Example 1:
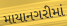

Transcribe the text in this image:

માયાનગરીમાં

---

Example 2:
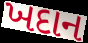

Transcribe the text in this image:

ખદાન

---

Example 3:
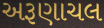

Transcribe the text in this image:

અરૂણાચલ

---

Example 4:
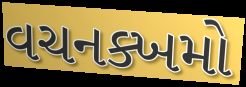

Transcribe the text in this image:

વચનક્ખમો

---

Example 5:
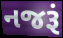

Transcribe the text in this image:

નજરૂં